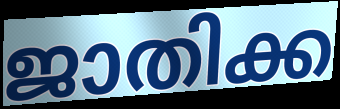
ജാതിക്ക